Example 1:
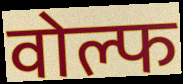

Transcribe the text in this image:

वोल्फ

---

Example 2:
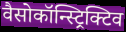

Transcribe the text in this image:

वैसोकॉन्स्ट्रिक्टिव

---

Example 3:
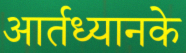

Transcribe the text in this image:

आर्तध्यानके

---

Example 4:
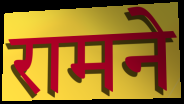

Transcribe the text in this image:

रामने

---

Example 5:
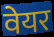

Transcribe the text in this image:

वेयर